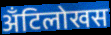
अँटिलोखस